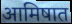
आमिषात